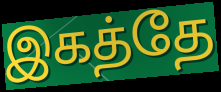
இகத்தே